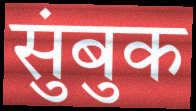
सुंबुक